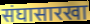
संघासारखा